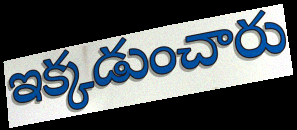
ఇక్కడుంచారు